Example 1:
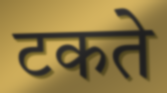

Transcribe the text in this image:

टकते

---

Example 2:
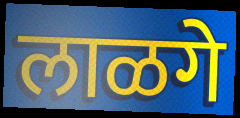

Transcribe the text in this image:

लाळगे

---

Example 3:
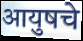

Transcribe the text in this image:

आयुषचे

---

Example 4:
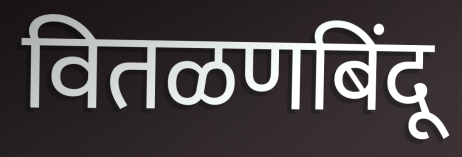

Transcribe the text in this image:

वितळणबिंदू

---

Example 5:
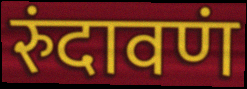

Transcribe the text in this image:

रुंदावणं